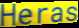
Heras